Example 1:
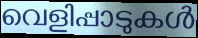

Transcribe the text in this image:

വെളിപ്പാടുകൾ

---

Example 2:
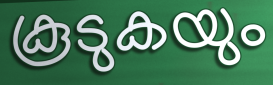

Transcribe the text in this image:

കൂടുകയും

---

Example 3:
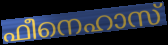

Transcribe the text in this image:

ഫീനെഹാസ്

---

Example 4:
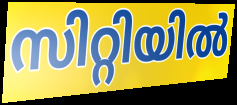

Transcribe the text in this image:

സിറ്റിയിൽ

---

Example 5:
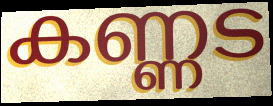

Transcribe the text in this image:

കണ്ണട